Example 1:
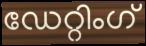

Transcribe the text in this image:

ഡേറ്റിംഗ്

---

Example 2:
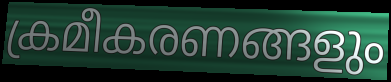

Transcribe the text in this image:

ക്രമീകരണങ്ങളും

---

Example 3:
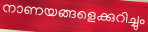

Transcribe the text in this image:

നാണയങ്ങളെക്കുറിച്ചും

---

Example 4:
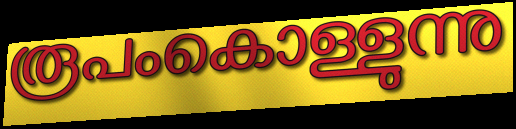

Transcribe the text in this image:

രൂപംകൊള്ളുന്നു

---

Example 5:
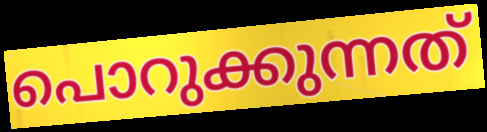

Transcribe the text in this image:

പൊറുക്കുന്നത്